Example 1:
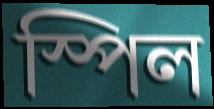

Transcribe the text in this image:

স্পিল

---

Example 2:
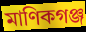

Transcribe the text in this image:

মাণিকগঞ্জ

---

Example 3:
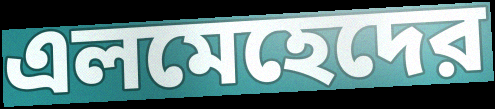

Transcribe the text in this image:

এলমেহেদের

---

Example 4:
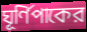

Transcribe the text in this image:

ঘূর্ণিপাকের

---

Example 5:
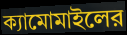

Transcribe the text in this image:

ক্যামোমাইলের